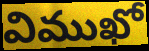
విముఖో